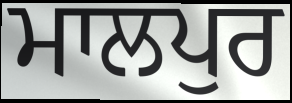
ਮਾਲਪੁਰ